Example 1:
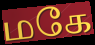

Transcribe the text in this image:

மகே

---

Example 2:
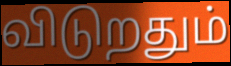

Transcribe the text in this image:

விடுறதும்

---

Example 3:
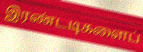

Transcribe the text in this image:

இரண்டடிகளைப்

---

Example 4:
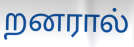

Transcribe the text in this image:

றனரால்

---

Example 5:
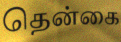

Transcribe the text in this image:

தென்கை